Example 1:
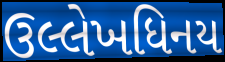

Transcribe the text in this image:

ઉલ્લેખધિનય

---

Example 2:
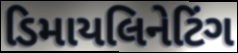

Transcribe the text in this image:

ડિમાયલિનેટિંગ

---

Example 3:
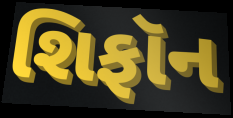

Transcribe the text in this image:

શિફૉન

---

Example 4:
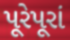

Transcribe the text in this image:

પૂરેપૂરાં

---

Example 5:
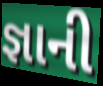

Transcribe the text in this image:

જ્ઞાની